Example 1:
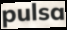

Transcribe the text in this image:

pulsa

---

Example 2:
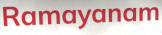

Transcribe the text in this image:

Ramayanam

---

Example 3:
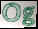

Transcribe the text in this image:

Og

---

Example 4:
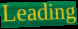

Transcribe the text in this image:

Leading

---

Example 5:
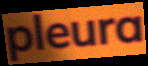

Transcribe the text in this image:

pleura